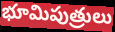
భూమిపుత్రులు